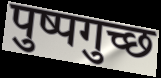
पुष्पगुच्छ